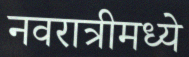
नवरात्रीमध्ये